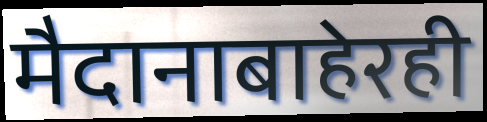
मैदानाबाहेरही